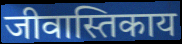
जीवास्तिकाय